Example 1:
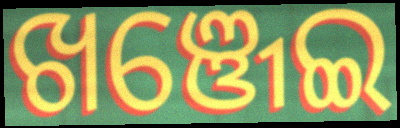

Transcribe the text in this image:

ଖଞ୍ଜେଇ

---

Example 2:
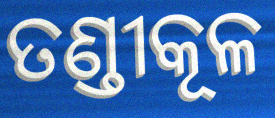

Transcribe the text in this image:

ତଣ୍ଡୀକୂଳ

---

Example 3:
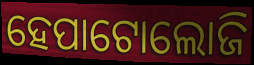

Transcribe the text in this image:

ହେପାଟୋଲୋଜି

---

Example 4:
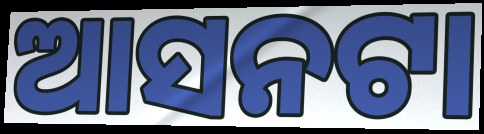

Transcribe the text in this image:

ଆସନଟା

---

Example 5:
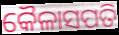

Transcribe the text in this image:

କୈଳାସପତି